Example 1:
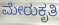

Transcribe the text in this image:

ಮೇರುಕೃತಿ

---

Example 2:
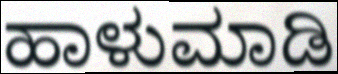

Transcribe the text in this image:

ಹಾಳುಮಾಡಿ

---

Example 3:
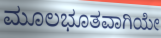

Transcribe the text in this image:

ಮೂಲಭೂತವಾಗಿಯೇ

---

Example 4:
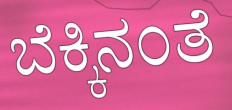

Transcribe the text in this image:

ಬೆಕ್ಕಿನಂತೆ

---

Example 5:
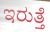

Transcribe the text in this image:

ಇರುತ್ತೆ